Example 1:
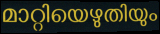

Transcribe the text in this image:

മാറ്റിയെഴുതിയും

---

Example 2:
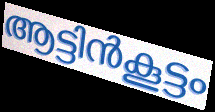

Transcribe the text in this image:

ആട്ടിൻകൂട്ടം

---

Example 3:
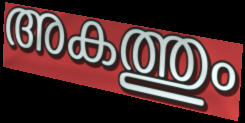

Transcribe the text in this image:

അകത്തും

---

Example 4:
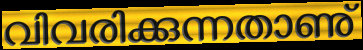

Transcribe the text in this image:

വിവരിക്കുന്നതാണു്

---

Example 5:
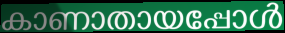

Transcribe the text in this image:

കാണാതായപ്പോൾ